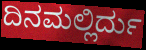
ದಿನಮಲ್ಲಿರ್ದು